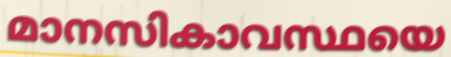
മാനസികാവസ്ഥയെ